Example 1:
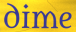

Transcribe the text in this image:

dime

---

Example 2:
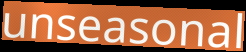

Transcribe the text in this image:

unseasonal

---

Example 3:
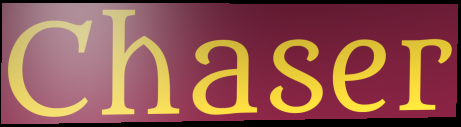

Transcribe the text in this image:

Chaser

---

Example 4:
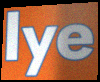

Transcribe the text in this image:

Iye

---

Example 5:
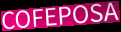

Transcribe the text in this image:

COFEPOSA